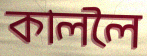
কাললৈ